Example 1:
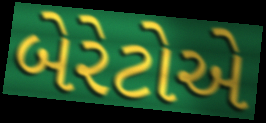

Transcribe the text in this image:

બેરેટોએ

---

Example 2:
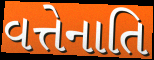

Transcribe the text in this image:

વત્તેનાતિ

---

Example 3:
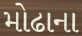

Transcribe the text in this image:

મોઢાના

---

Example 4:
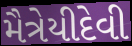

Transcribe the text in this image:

મૈત્રેયીદેવી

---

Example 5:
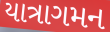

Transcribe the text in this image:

યાત્રાગમન